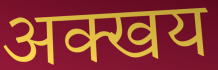
अक्खय